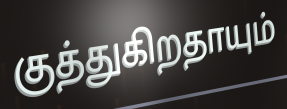
குத்துகிறதாயும்